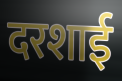
दरशाई